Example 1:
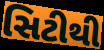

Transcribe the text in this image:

સિટીથી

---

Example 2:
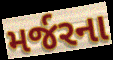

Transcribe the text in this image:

મર્જરના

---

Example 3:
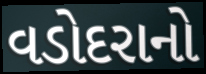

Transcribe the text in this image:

વડોદરાનો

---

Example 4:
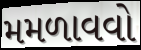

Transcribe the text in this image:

મમળાવવો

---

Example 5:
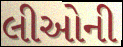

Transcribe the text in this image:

લીઓની